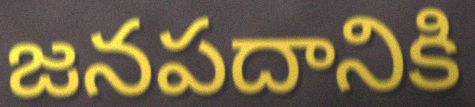
జనపదానికి